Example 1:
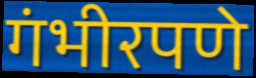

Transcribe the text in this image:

गंभीरपणे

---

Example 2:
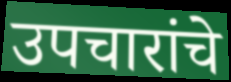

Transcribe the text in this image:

उपचारांचे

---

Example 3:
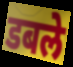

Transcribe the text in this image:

डबले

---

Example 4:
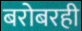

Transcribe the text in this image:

बरोबरही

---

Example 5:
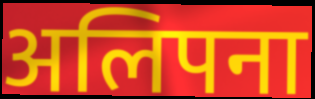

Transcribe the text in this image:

अलिपना